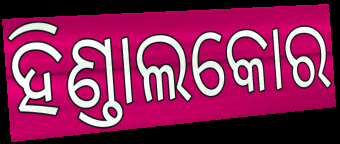
ହିଣ୍ଡାଲକୋର